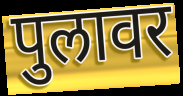
पुलावर